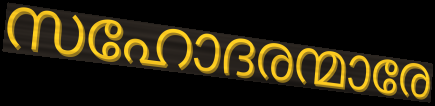
സഹോദരന്മാരേ